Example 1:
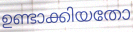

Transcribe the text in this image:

ഉണ്ടാക്കിയതോ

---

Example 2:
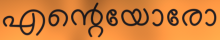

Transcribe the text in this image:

എന്റെയോരോ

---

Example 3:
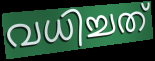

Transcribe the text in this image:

വധിച്ചത്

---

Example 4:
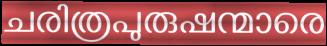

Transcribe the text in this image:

ചരിത്രപുരുഷന്മാരെ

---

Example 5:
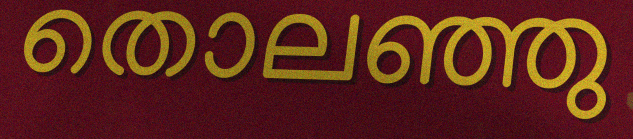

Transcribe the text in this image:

തൊലഞ്ഞു